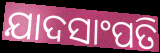
ଯାଦସାଂପତି